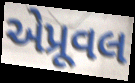
એપ્રૂવલ